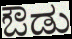
ಔಡು